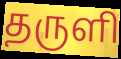
தருளி